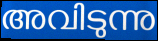
അവിടുന്നു